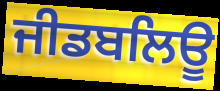
ਜੀਡਬਲਿਊ